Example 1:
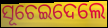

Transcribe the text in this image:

ସୂଚେଇଦେଲେ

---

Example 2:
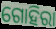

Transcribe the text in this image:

ଗୋହିରା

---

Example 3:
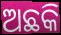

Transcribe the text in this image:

ଅଛକି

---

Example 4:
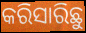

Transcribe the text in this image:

କରିସାରିଛୁ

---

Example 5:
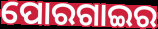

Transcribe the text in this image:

ପୋରଗାଇର